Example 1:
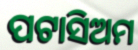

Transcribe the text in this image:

ପଟାସିଅମ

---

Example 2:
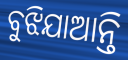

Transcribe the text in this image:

ବୁଝିଯାଆନ୍ତି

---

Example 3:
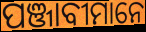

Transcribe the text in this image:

ପଞ୍ଜାବୀମାନେ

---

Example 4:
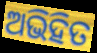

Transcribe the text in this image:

ଅଭିହିତ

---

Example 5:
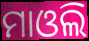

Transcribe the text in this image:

ମାଓଲି